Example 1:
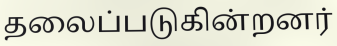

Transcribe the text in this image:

தலைப்படுகின்றனர்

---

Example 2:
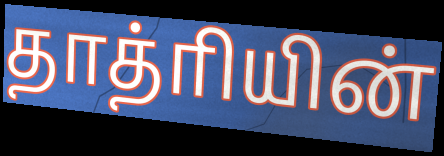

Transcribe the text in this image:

தாத்ரியின்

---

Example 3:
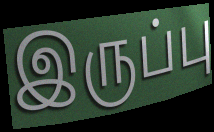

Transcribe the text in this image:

இருப்பு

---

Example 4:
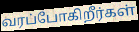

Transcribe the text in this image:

வரப்போகிறீர்கள்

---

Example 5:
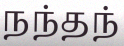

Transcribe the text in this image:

நந்தந்